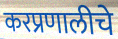
करप्रणालीचे